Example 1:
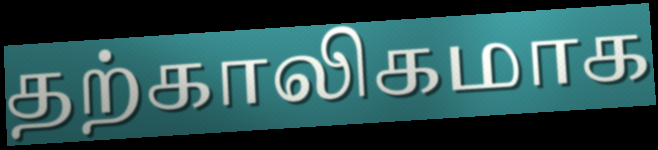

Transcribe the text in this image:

தற்காலிகமாக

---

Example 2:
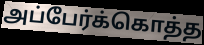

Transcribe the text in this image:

அப்பேர்க்கொத்த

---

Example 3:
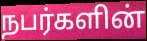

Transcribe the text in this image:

நபர்களின்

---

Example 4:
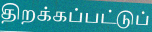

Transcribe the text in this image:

திறக்கப்பட்டுப்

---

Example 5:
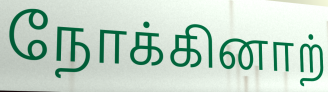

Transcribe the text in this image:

நோக்கினாற்